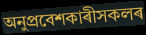
অনুপ্ৰবেশকাৰীসকলৰ